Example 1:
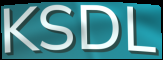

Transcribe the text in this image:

KSDL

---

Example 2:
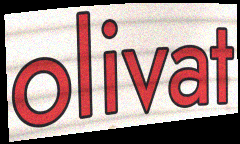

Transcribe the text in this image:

olivat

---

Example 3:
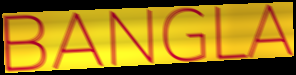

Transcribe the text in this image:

BANGLA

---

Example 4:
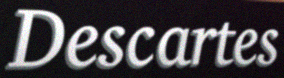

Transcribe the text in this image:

Descartes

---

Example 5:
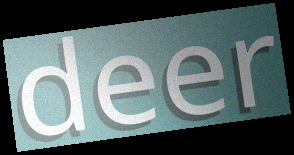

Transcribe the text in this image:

deer